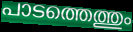
പാടത്തെത്തും